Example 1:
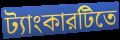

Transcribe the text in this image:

ট্যাংকারটিতে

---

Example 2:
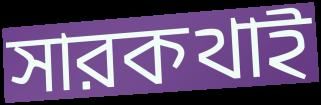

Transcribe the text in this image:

সারকথাই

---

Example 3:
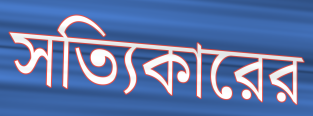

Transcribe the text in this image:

সত্যিকারের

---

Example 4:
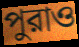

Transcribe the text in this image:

পুরাও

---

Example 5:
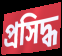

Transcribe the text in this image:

প্রসিদ্ধ